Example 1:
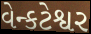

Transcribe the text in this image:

વેન્કટેશ્વર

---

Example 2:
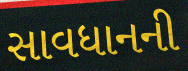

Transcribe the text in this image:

સાવધાનની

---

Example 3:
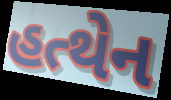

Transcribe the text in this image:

હત્થેન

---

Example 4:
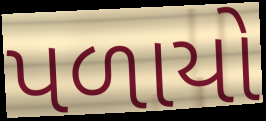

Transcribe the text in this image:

પળાયો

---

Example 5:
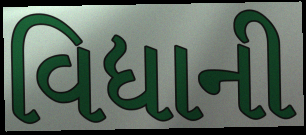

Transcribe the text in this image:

વિદ્યાની